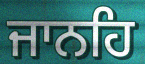
ਜਾਨਹਿ